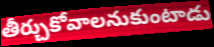
తీర్చుకోవాలనుకుంటాడు